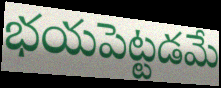
భయపెట్టడమే